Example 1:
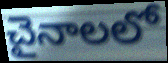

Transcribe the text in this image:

చైనాలలో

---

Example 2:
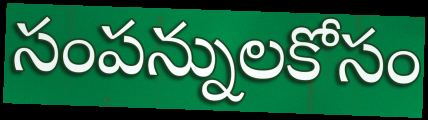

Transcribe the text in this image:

సంపన్నులకోసం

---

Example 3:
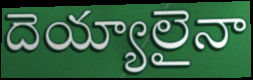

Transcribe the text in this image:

దెయ్యాలైనా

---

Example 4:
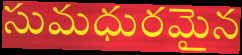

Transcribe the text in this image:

సుమధురమైన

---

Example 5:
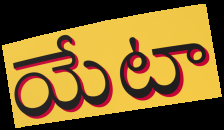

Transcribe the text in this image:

యేటా